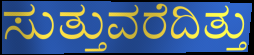
ಸುತ್ತುವರೆದಿತ್ತು